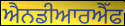
ਐਨਡੀਆਰਐੱਫ